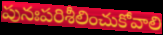
పునఃపరిశీలించుకోవాలి